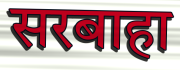
सरबाहा